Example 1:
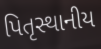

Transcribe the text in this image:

પિતૃસ્થાનીય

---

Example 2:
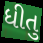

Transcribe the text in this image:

ધીતુ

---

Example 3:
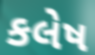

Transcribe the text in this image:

કલેષ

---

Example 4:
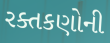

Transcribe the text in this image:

રક્તકણોની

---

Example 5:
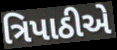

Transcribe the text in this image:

ત્રિપાઠીએ